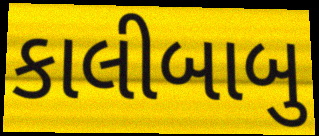
કાલીબાબુ